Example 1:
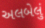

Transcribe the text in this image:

અલબેલું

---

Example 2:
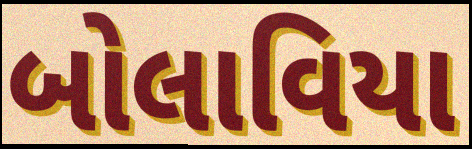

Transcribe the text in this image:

બોલાવિયા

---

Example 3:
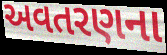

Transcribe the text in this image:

અવતરણના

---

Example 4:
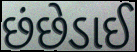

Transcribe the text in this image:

છંછેડાઈ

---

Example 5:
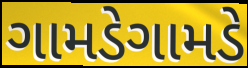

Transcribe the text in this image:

ગામડેગામડે